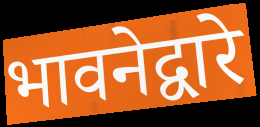
भावनेद्वारे